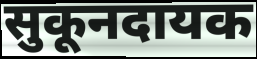
सुकूनदायक